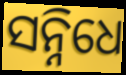
ସନ୍ନିଧେ